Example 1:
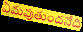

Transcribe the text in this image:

ఏమవుతుందనేది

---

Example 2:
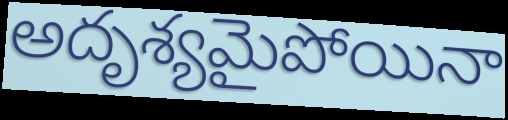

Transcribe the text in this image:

అదృశ్యమైపోయినా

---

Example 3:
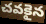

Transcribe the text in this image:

చవకైన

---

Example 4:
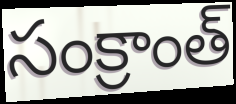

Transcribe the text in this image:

సంక్రాంత్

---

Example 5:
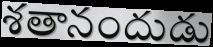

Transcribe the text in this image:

శతానందుడు